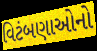
વિટંબણાઓનો